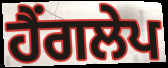
ਹੈਂਗਲੇਪ